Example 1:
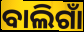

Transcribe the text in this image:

ବାଲିଗାଁ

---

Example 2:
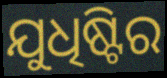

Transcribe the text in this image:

ଯୁଧିଷ୍ଟିର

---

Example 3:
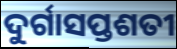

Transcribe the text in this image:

ଦୁର୍ଗାସପ୍ତଶତୀ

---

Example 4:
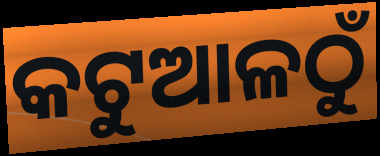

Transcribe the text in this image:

କଟୁଆଳଠୁଁ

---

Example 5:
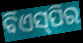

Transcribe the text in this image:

ବିଏସ୍‌ପିର